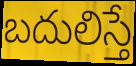
బదులిస్తే